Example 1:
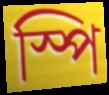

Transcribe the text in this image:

স্পি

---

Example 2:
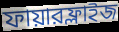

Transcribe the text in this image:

ফায়ারফ্লাইজ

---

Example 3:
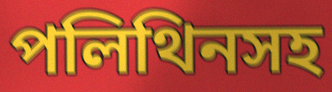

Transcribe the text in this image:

পলিথিনসহ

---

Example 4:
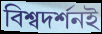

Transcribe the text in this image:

বিশ্বদর্শনই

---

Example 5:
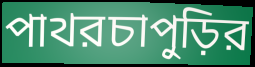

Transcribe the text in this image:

পাথরচাপুড়ির